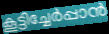
കൂട്ടിച്ചേർപ്പാൻ